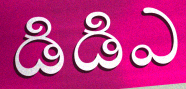
డిడిఎ